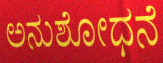
ಅನುಶೋಧನೆ